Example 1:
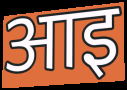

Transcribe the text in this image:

आइ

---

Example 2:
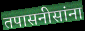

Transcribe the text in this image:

तपासनीसांना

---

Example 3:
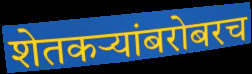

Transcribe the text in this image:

शेतकऱ्यांबरोबरच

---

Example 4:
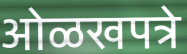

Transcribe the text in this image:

ओळखपत्रे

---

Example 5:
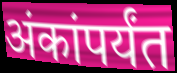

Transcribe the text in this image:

अंकांपर्यंत